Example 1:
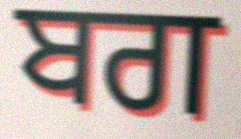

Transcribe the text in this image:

ਬਗ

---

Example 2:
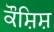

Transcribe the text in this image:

ਕੌਸ਼ਿਸ਼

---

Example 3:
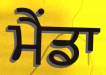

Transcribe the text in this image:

ਮੈਂਡਾ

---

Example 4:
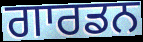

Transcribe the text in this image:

ਗਾਰਡਨ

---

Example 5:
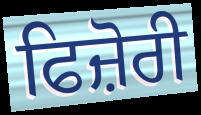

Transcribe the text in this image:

ਫਿਜ਼ੋਰੀ